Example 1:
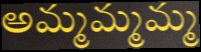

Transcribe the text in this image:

అమ్మమ్మమ్మ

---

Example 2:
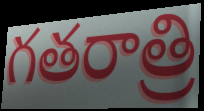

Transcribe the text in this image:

గతరాత్రి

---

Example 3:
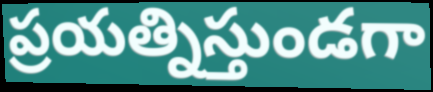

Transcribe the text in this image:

ప్రయత్నిస్తుండగా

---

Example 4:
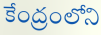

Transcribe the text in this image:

కేంద్రంలోని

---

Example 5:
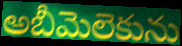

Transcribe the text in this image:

అబీమెలెకును